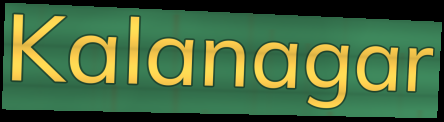
Kalanagar